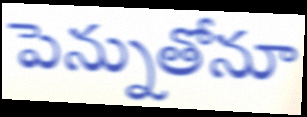
పెన్నుతోనూ